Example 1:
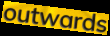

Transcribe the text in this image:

outwards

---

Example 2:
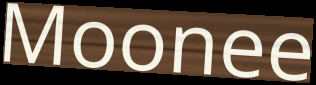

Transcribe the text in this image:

Moonee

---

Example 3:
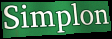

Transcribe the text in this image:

Simplon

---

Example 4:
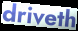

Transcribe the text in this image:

driveth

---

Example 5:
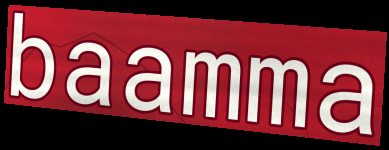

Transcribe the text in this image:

baamma